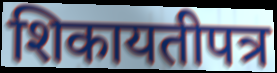
शिकायतीपत्र